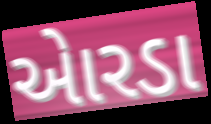
એારડા